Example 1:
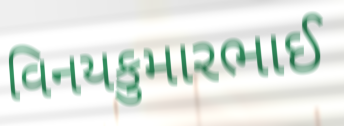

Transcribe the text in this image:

વિનયકુમારભાઈ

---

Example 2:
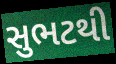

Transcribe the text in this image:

સુભટથી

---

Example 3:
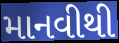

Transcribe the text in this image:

માનવીથી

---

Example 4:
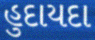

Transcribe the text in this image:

હુદાયદા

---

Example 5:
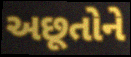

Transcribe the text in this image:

અછૂતોને